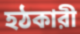
হঠকারী